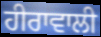
ਹੀਰਾਵਾਲੀ